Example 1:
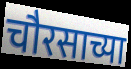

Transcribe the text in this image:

चौरसाच्या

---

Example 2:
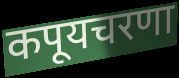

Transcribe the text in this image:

कपूयचरणा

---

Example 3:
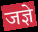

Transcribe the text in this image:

जज्ञे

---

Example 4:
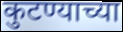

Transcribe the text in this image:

कुटण्याच्या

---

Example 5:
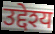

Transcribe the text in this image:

उद्देश्य